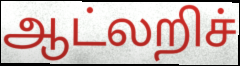
ஆட்லறிச்